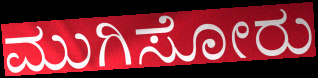
ಮುಗಿಸೋರು